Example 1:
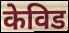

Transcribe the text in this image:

केविड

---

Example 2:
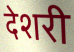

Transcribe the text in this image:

देशरी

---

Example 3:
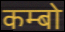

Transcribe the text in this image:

कम्बो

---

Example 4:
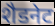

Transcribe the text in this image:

शैडनेट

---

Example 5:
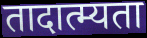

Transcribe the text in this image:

तादात्म्यता